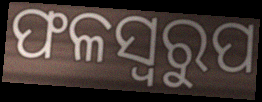
ଫଳସ୍ୱରୁପ